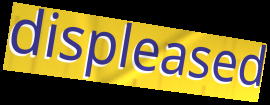
displeased